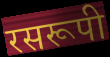
रसरूपी